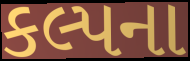
કલ્પના